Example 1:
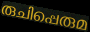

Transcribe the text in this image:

രുചിപ്പെരുമ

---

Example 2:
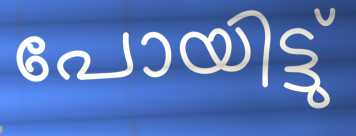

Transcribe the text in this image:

പോയിട്ടു്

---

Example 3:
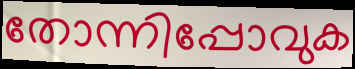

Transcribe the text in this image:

തോന്നിപ്പോവുക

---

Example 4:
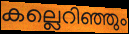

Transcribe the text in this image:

കല്ലെറിഞ്ഞും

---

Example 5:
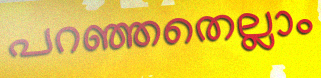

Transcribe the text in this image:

പറഞ്ഞതെല്ലാം